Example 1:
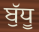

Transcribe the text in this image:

ਬੁੱਧੂ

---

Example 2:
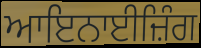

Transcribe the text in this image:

ਆਇਨਾਈਜ਼ਿੰਗ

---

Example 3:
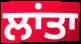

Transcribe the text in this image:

ਲਾਂਤਾ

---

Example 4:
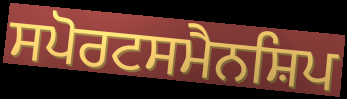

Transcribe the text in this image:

ਸਪੋਰਟਸਮੈਨਸ਼ਿਪ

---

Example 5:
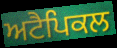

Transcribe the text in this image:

ਅਟੈਪਿਕਲ